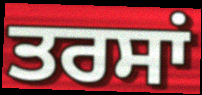
ਤਰਸਾਂ